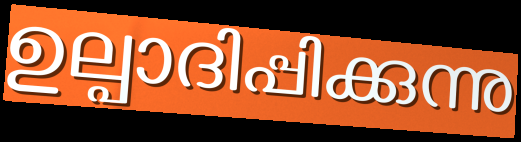
ഉല്പാദിപ്പിക്കുന്നു